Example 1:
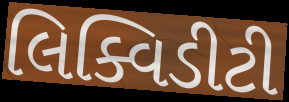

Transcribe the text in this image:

લિક્વિડીટી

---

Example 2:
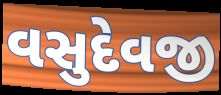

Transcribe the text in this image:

વસુદેવજી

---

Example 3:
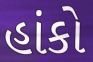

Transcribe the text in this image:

હાંકો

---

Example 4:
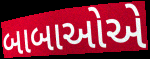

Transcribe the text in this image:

બાબાઓએ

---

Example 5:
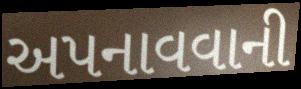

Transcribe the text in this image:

અપનાવવાની